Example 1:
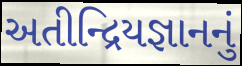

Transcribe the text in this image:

અતીન્દ્રિયજ્ઞાનનું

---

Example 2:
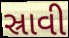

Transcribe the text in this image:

સ્રાવી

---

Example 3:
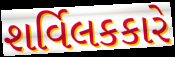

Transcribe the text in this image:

શર્વિલકકારે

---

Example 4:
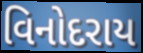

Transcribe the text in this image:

વિનોદરાય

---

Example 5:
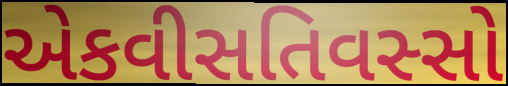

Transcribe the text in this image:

એકવીસતિવસ્સો